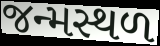
જન્મસ્થળ